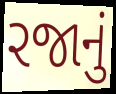
રજાનું